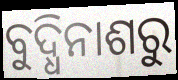
ବୁଦ୍ଧିନାଶରୁ